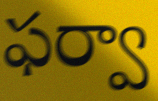
ఫర్వా